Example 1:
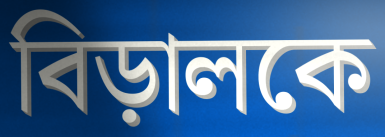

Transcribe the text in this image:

বিড়ালকে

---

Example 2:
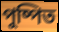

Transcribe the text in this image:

পুষ্পিত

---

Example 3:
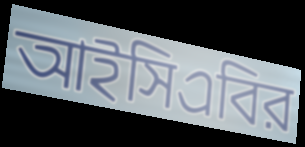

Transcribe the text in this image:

আইসিএবির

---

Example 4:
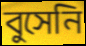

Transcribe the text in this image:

বুসেনি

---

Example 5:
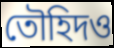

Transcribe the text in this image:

তৌহিদও